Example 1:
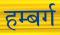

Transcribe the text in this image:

हम्बर्ग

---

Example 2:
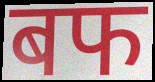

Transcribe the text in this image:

बफ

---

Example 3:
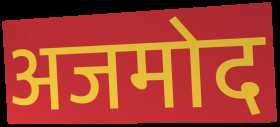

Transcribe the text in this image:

अजमोद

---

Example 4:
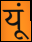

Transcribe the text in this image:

यूं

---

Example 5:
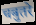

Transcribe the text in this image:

चबुतरे